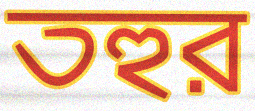
তহুর